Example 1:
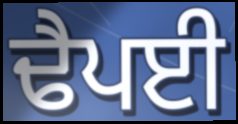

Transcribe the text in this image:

ਢੈਪਈ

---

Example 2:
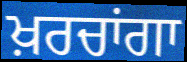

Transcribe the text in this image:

ਖ਼ਰਚਾਂਗਾ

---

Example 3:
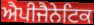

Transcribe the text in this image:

ਐਪੀਜੈਨੇਟਿਕ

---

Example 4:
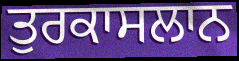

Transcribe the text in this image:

ਤੁਰਕਾਸਲਾਨ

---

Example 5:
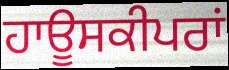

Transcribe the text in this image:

ਹਾਊਸਕੀਪਰਾਂ